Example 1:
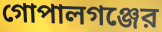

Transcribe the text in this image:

গোপালগঞ্জের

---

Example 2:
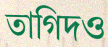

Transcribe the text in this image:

তাগিদও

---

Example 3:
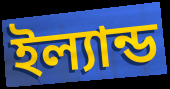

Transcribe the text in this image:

ইল্যান্ড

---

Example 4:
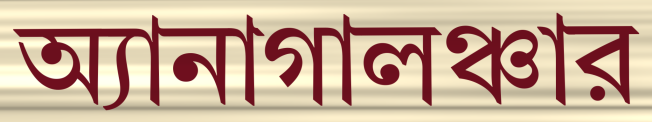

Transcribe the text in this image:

অ্যানাগালঞ্চার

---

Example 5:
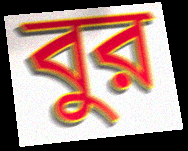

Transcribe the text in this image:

বুর